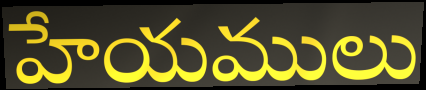
హేయములు